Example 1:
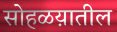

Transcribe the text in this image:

सोहळय़ातील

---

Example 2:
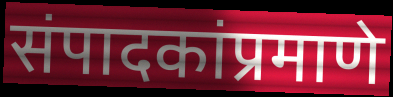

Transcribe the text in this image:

संपादकांप्रमाणे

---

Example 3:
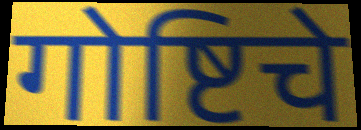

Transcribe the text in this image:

गोष्टिचे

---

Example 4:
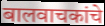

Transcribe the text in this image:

बालवाचकांचे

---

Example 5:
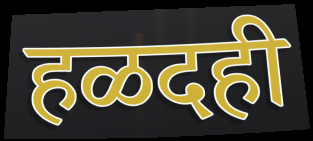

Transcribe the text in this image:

हळदही